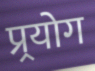
प्र्रयोग